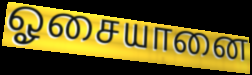
ஓசையானை